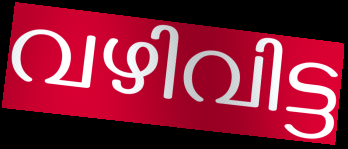
വഴിവിട്ട